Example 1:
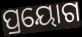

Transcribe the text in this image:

ପ୍ରୟୋଗ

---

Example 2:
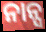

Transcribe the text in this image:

ନାନ୍ସ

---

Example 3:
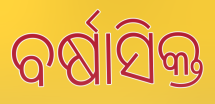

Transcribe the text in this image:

ବର୍ଷାସିକ୍ତ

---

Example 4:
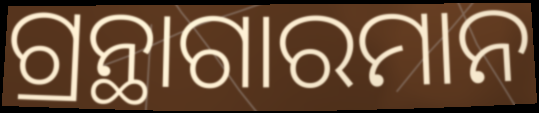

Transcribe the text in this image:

ଗ୍ରନ୍ଥାଗାରମାନ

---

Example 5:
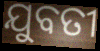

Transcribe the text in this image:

ଯୁବତୀ